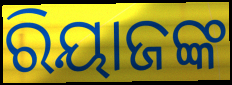
ରିୟାଜଙ୍କ